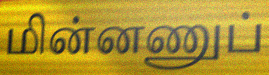
மின்னணுப்